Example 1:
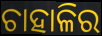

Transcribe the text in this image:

ଚାହାଳିର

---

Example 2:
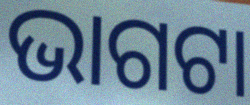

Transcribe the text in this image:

ଭାଗଟା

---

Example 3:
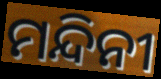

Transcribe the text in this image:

ମନ୍ଦିନୀ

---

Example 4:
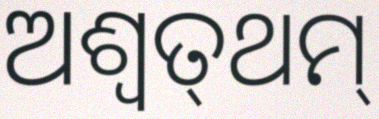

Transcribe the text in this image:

ଅଶ୍ୱତ୍‌ଥମ୍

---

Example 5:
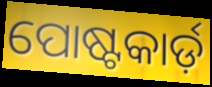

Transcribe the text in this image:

ପୋଷ୍ଟକାର୍ଡ଼